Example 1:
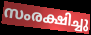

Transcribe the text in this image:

സംരക്ഷിച്ചു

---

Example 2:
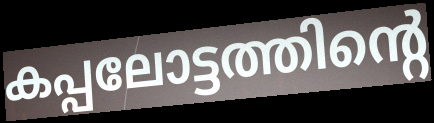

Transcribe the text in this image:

കപ്പലോട്ടത്തിന്റെ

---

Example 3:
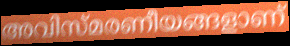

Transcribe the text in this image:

അവിസ്മരണീയങ്ങളാണ്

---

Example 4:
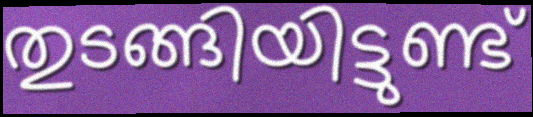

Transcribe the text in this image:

തുടങ്ങിയിട്ടുണ്ട്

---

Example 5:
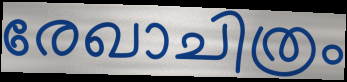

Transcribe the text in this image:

രേഖാചിത്രം